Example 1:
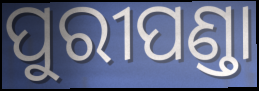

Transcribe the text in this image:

ପୁରୀପଣ୍ଡା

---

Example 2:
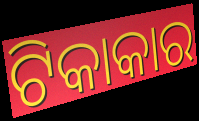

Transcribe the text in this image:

ଟିକାକାର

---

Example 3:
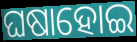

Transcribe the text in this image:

ଘଷାହୋଇ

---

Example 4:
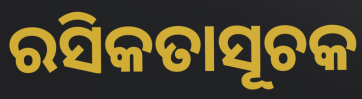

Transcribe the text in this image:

ରସିକତାସୂଚକ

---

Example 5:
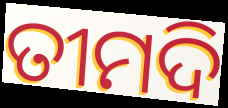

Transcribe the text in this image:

ତୀମଦି